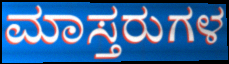
ಮಾಸ್ತರುಗಳ